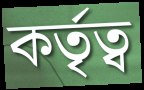
কর্তৃত্ব